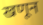
खणून